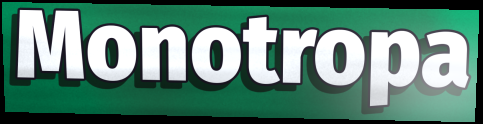
Monotropa